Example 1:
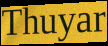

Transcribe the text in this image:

Thuyar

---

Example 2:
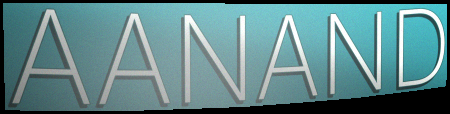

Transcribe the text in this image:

AANAND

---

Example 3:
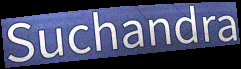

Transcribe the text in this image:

Suchandra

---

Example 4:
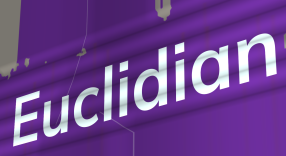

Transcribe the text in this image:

Euclidian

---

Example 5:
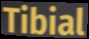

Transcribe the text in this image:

Tibial